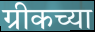
ग्रीकच्या